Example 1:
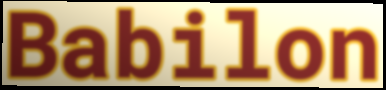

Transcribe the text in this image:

Babilon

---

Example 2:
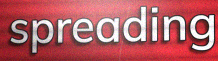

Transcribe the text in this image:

spreading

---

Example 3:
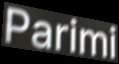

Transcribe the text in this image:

Parimi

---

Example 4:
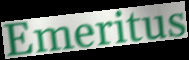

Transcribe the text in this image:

Emeritus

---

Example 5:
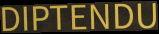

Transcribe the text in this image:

DIPTENDU